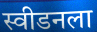
स्वीडनला